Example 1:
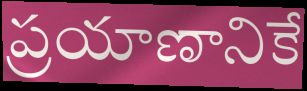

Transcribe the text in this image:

ప్రయాణానికే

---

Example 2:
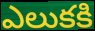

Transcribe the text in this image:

ఎలుకకి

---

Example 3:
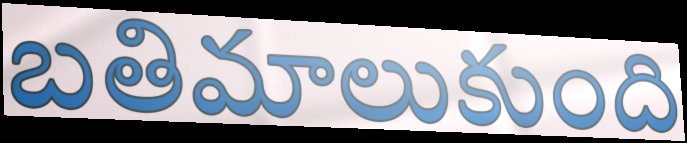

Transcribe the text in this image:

బతిమాలుకుంది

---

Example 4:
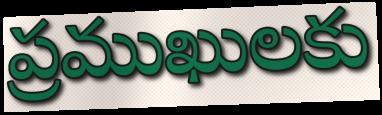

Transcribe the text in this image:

ప్రముఖులకు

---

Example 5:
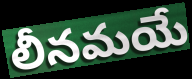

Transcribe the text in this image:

లీనమయే